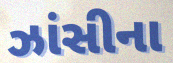
ઝાંસીના